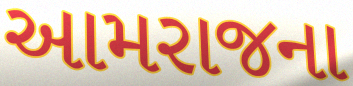
આમરાજના